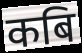
कबि